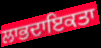
ਲਾਭਦਾਇਕਤਾ